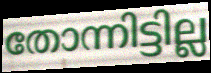
തോന്നിട്ടില്ല